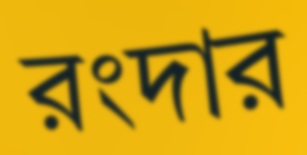
রংদার